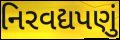
નિરવદ્યપણું